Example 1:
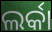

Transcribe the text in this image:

ଲର୍କା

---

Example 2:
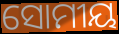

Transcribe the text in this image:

ସୋମୀୟ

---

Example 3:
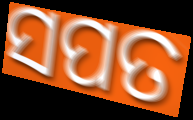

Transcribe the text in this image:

ସପତ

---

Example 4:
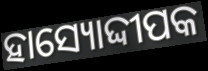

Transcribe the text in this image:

ହାସ୍ୟୋଦ୍ଦୀପକ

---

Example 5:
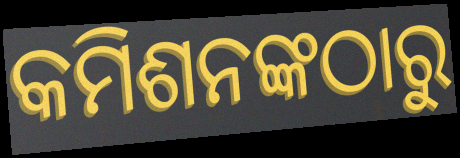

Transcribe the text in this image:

କମିଶନଙ୍କଠାରୁ